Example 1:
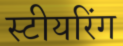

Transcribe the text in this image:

स्टीयरिंग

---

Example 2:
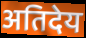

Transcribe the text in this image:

अतिदेय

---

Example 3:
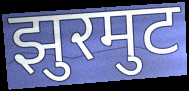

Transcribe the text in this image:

झुरमुट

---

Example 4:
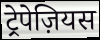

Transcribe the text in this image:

ट्रेपेज़ियस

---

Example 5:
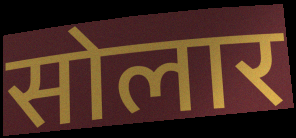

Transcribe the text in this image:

सोलार